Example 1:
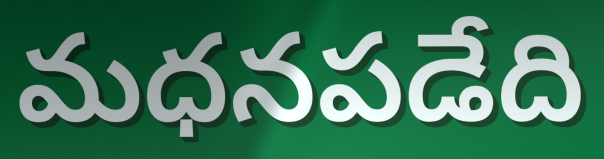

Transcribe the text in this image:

మధనపడేది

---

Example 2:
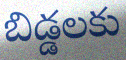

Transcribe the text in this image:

బిడ్డలకు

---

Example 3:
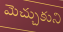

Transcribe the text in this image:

మెచ్చుకుని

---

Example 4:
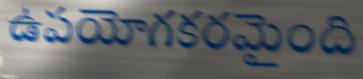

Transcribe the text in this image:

ఉపయోగకరమైంది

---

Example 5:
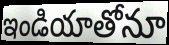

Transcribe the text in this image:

ఇండియాతోనూ